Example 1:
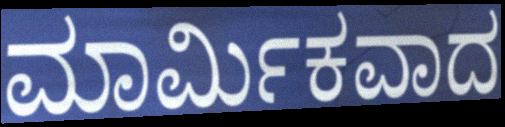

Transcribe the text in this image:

ಮಾರ್ಮಿಕವಾದ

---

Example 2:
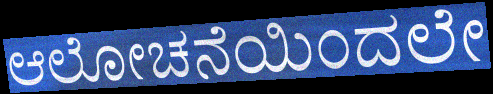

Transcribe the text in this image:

ಆಲೋಚನೆಯಿಂದಲೇ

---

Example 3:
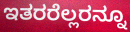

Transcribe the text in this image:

ಇತರರೆಲ್ಲರನ್ನೂ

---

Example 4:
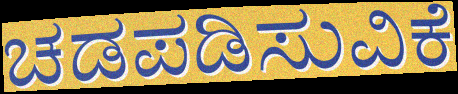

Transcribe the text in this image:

ಚಡಪಡಿಸುವಿಕೆ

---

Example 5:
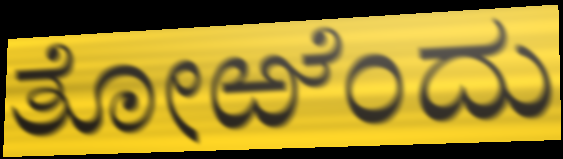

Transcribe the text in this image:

ತೋಱೆಂದು